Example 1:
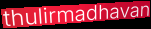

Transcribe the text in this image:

thulirmadhavan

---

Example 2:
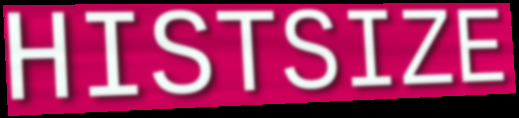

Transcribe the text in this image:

HISTSIZE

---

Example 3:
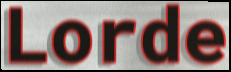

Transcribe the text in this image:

Lorde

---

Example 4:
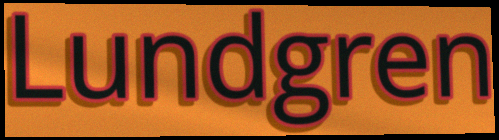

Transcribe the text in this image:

Lundgren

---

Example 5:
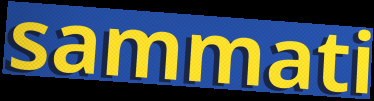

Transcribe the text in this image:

sammati